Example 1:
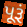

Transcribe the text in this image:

પૂરૂં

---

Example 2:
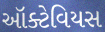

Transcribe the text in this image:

ઑક્ટેવિયસ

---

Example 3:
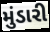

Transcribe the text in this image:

મુંડારી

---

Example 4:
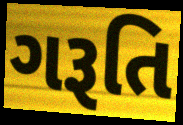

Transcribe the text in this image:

ગરૂતિ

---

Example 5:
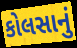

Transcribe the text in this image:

કોલસાનું